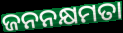
ଜନନକ୍ଷମତା